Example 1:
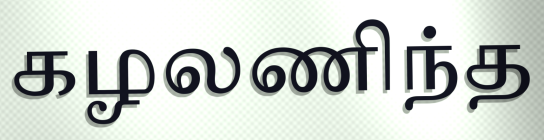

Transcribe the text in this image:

கழலணிந்த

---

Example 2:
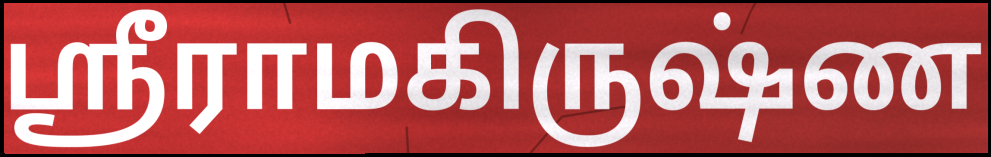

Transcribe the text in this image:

ஸ்ரீராமகிருஷ்ண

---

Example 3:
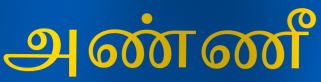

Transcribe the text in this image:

அண்ணீ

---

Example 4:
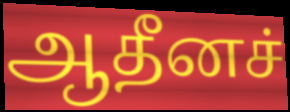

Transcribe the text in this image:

ஆதீனச்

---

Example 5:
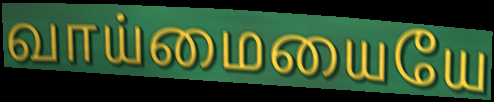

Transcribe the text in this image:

வாய்மையையே